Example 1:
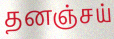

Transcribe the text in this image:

தனஞ்சய்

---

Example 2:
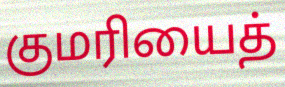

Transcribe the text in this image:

குமரியைத்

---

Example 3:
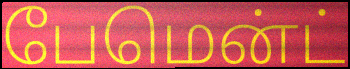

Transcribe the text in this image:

பேமென்ட்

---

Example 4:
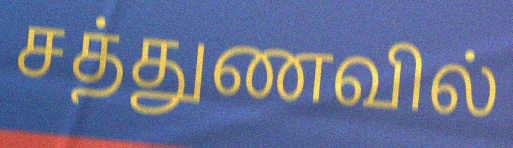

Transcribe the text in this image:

சத்துணவில்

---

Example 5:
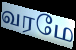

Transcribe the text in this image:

வரமே